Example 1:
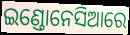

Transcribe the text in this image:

ଇଣ୍ଡୋନେସିଆରେ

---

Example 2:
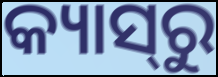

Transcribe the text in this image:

କ୍ୟାସ୍‌ରୁ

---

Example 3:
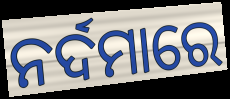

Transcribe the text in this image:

ନର୍ଦମାରେ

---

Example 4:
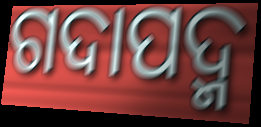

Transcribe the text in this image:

ଗଦାପଦ୍ମ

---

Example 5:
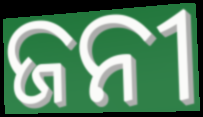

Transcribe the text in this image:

ଜନୀ